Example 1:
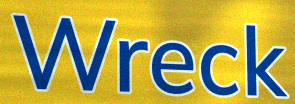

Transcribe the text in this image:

Wreck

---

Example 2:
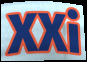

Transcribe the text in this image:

XXi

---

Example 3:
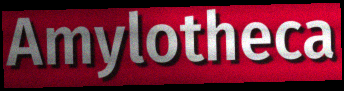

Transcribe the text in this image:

Amylotheca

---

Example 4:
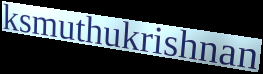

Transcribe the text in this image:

ksmuthukrishnan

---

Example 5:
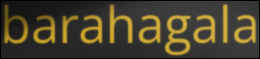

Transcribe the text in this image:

barahagala